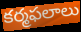
కర్మఫలాలు